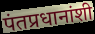
पंतप्रधानांशी